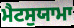
ਮੈਟਸੁਯਾਮਾ